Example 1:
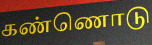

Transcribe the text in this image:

கண்ணொடு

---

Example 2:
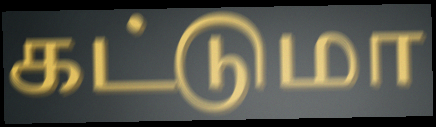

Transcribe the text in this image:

கட்டுமா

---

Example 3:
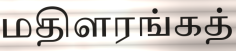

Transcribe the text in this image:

மதிளரங்கத்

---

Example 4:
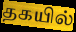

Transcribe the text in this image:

தகயில்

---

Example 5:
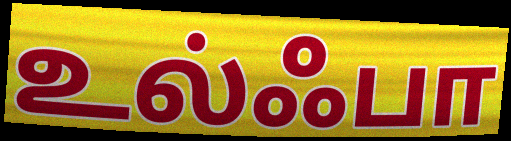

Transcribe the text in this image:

உல்ஃபா